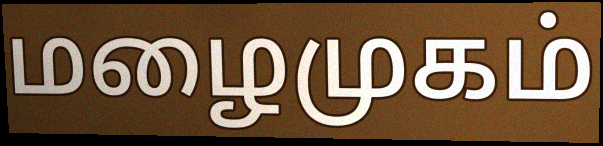
மழைமுகம்